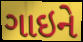
ગાઇને